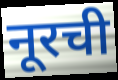
नूरची